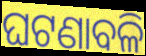
ଘଟଣାବଳି